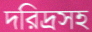
দরিদ্রসহ